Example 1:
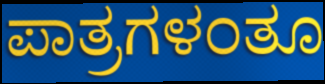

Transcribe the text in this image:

ಪಾತ್ರಗಳಂತೂ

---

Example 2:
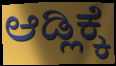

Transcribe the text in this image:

ಆಡ್ಲಿಕ್ಕೆ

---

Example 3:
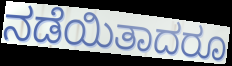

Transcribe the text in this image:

ನಡೆಯಿತಾದರೂ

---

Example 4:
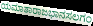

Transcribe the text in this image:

ಯಮಾತಾರಾಜಭಾನಸಲಗಂ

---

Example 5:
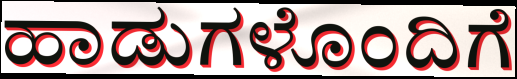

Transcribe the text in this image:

ಹಾಡುಗಳೊಂದಿಗೆ